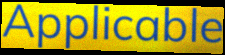
Applicable